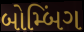
બોમ્બિંગ